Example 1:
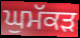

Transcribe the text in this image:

ਘੁਮੱਕੜ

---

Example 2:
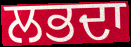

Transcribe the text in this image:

ਲਭਦਾ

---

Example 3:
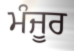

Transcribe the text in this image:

ਮੰਜੂਰ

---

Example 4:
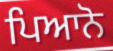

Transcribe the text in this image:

ਪਿਆਨੋ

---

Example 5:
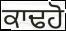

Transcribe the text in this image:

ਕਾਢਹੋ